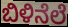
ಬಿಳಿನೆಲೆ